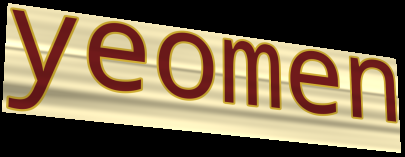
yeomen